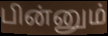
பின்னும்